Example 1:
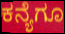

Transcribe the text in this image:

ಕನ್ಯೆಗೂ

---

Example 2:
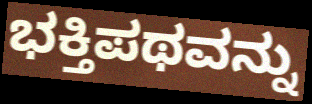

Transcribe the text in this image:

ಭಕ್ತಿಪಥವನ್ನು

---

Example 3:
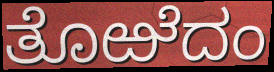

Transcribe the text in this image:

ತೊಱೆದಂ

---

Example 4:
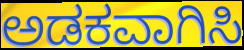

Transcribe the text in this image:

ಅಡಕವಾಗಿಸಿ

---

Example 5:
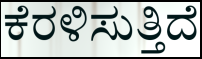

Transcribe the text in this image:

ಕೆರಳಿಸುತ್ತಿದೆ